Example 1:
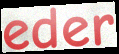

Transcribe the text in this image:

eder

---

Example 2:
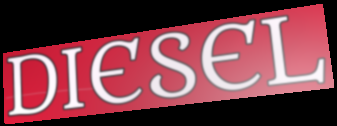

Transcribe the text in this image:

DIESEL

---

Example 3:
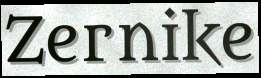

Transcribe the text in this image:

Zernike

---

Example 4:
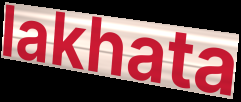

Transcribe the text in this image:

lakhata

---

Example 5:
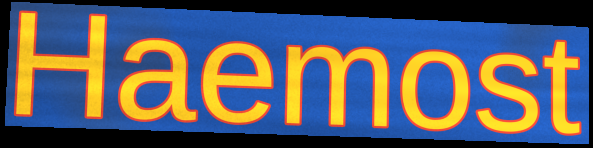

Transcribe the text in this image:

Haemost